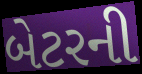
બેટરની